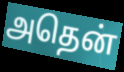
அதென்